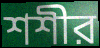
শশীর